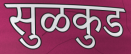
सुळकुड